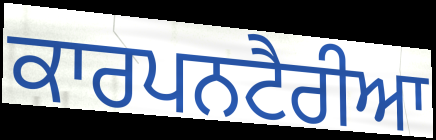
ਕਾਰਪਨਟੈਰੀਆ